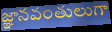
జ్ఞానవంతులుగా